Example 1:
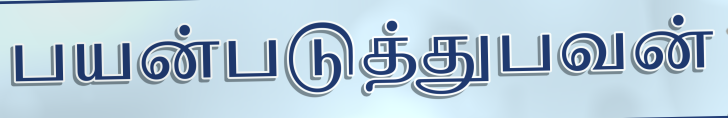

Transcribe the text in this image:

பயன்படுத்துபவன்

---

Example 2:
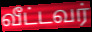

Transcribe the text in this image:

வீட்டவர்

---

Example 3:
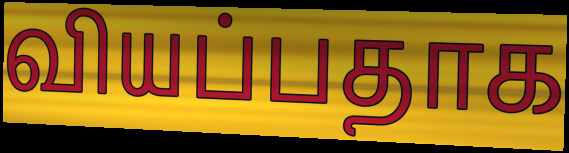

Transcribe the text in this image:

வியப்பதாக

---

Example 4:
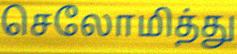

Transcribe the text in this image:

செலோமித்து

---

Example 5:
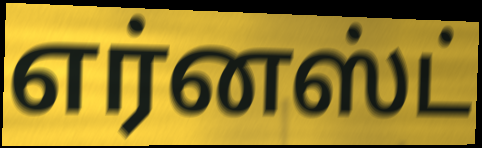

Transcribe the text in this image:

எர்னஸ்ட்